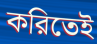
করিতেই